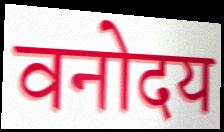
वनोदय